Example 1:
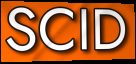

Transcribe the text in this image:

SCID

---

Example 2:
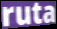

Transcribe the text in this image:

ruta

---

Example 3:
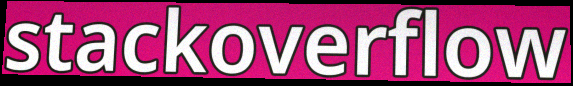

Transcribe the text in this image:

stackoverflow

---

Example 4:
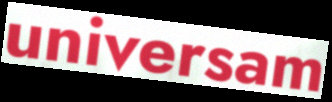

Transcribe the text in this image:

universam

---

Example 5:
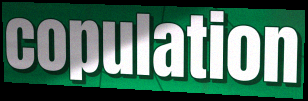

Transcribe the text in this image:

copulation